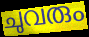
ചുവരും